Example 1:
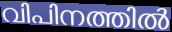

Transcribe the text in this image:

വിപിനത്തിൽ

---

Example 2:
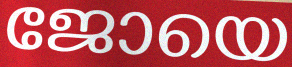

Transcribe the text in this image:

ജോയെ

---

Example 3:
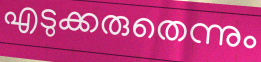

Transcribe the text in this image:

എടുക്കരുതെന്നും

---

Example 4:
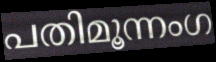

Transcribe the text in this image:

പതിമൂന്നംഗ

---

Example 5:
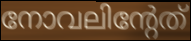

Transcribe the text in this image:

നോവലിന്റേത്